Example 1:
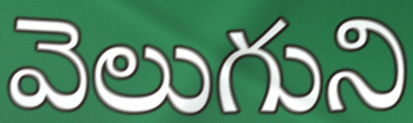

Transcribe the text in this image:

వెలుగుని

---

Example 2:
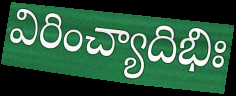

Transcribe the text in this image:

విరించ్యాదిభిః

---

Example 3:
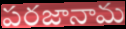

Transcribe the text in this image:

పరజానామ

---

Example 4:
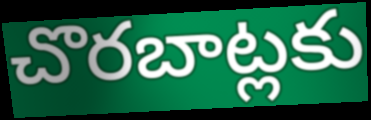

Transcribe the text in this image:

చొరబాట్లకు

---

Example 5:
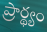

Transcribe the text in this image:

ప్రార్థ్యం